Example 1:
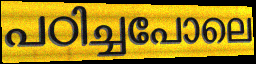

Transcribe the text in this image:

പഠിച്ചപോലെ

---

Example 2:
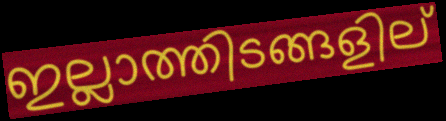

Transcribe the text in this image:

ഇല്ലാത്തിടങ്ങളില്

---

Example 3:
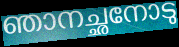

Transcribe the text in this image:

ഞാനച്ഛനോടു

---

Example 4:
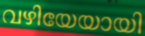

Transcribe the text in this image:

വഴിയേയായി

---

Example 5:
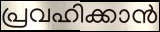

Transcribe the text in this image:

പ്രവഹിക്കാൻ